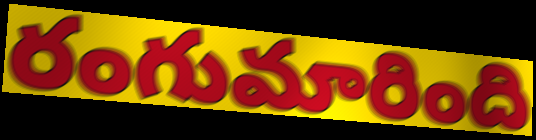
రంగుమారింది